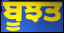
ਬੂਝਤ